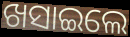
ଖସାଇଲେ